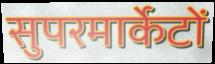
सुपरमार्केटों